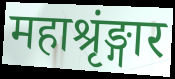
महाश्रृंङ्गार